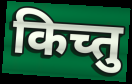
किच्तु